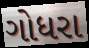
ગોધરા